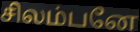
சிலம்பனே